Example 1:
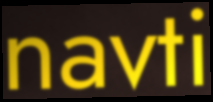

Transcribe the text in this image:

navti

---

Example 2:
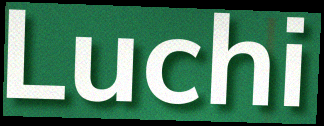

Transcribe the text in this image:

Luchi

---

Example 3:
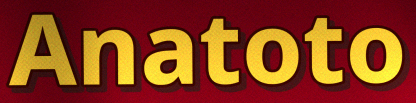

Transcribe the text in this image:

Anatoto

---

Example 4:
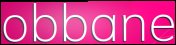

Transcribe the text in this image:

obbane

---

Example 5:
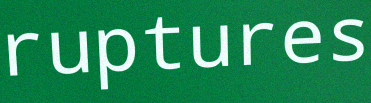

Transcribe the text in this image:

ruptures